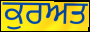
ਕੁਰਅਤ